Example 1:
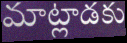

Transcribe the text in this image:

మాట్లాడకు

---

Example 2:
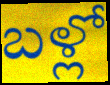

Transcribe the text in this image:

బళ్లో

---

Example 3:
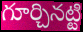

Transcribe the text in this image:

గూర్చినట్టి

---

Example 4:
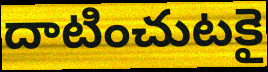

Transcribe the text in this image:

దాటించుటకై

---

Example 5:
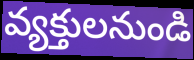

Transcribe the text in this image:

వ్యక్తులనుండి